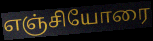
எஞ்சியோரை